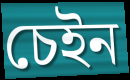
চেইন